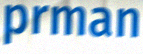
prman